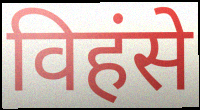
विहंसे